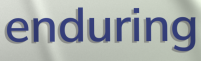
enduring